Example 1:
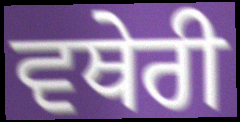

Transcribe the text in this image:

ਵਥੇਰੀ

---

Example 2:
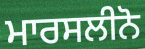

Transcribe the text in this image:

ਮਾਰਸਲੀਨੋ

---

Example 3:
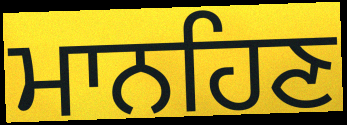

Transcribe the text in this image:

ਮਾਨਹਿਣ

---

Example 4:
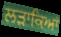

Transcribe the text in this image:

ਲੜਾਕਿਆਂ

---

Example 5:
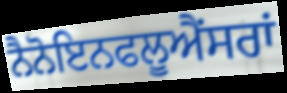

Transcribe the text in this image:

ਨੈਨੋਇਨਫਲੂਐਂਸਰਾਂ